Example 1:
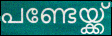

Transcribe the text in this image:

പണ്ടേയ്ക്ക്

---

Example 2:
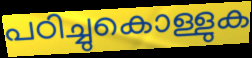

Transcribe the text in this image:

പഠിച്ചുകൊള്ളുക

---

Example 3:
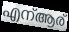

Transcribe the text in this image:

എന്ആര്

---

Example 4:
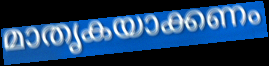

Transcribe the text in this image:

മാതൃകയാക്കണം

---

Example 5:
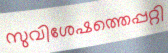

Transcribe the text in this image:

സുവിശേഷത്തെപ്പറ്റി